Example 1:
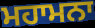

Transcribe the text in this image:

ਮਹਾਮਨਾ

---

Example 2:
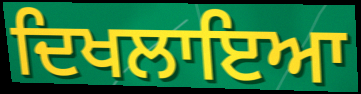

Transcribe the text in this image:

ਦਿਖਲਾਇਆ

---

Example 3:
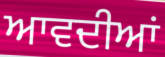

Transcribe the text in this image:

ਆਵਦੀਆਂ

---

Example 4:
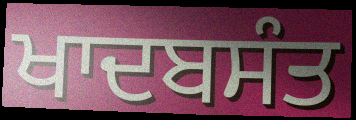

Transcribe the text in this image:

ਖਾਦਬਸੰਤ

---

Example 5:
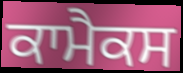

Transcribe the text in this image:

ਕਾਮੈਕਸ